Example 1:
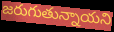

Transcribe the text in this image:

జరుగుతున్నాయని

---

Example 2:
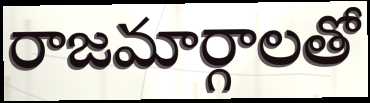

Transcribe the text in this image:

రాజమార్గాలతో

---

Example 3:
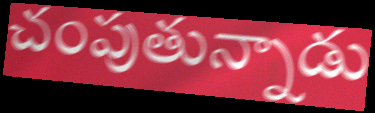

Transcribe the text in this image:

చంపుతున్నాడు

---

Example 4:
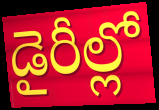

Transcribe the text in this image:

డైరీల్లో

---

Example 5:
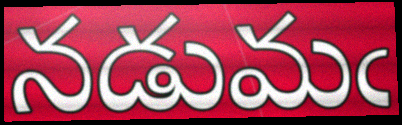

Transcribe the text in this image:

నడుమఁ